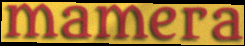
mamera